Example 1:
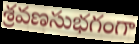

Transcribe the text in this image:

శ్రవణసుభగంగా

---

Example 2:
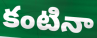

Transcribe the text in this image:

కంటినా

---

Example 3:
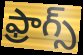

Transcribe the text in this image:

ఫ్రాగ్స్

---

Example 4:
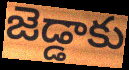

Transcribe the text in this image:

జెడ్డాకు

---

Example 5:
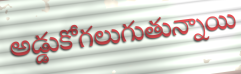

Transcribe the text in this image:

అడ్డుకోగలుగుతున్నాయి